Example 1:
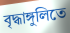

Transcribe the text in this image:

বৃদ্ধাঙ্গুলিতে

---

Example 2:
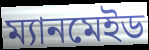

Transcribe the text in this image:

ম্যানমেইড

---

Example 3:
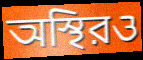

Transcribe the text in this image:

অস্থিরও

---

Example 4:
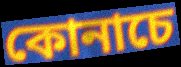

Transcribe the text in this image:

কোনাচে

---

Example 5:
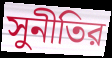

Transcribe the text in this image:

সুনীতির